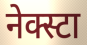
नेक्स्टा